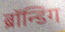
ब्रॉन्डिंग